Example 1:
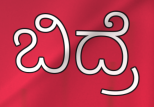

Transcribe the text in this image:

ಬಿದ್ರೆ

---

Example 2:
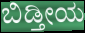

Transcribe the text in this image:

ಬಿಡ್ತೀಯ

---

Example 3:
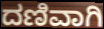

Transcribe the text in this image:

ದಣಿವಾಗಿ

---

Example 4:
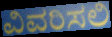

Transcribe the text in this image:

ವಿವರಿಸಲಿ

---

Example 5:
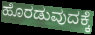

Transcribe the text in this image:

ಹೊರಡುವುದಕ್ಕೆ